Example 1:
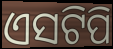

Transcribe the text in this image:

ଏସଟିପି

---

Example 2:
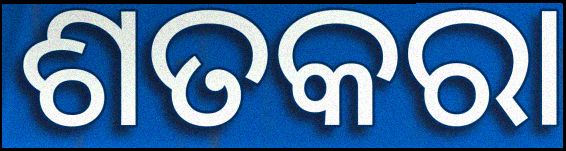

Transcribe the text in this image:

ଶତକରା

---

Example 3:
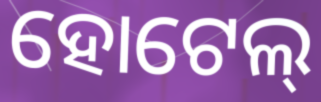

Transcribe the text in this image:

ହୋଟେଲ୍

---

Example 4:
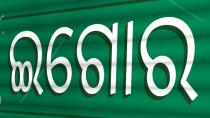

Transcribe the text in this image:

ଇଗୋର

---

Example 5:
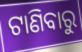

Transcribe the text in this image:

ଟାଣିବାରୁ